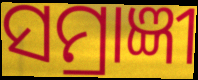
ସମ୍ରାଜ୍ଞୀ